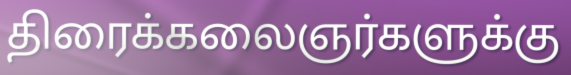
திரைக்கலைஞர்களுக்கு